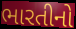
ભારતીનો